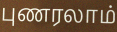
புணரலாம்